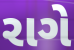
રાગે